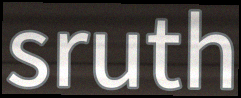
sruth